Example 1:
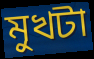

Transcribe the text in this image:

মুখটা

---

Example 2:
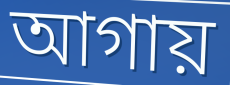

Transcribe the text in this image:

আগায়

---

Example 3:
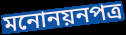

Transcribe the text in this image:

মনোনয়নপত্র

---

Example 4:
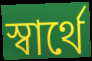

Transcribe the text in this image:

স্বার্থে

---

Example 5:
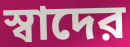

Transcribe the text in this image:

স্বাদের